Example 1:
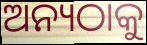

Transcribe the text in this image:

ଅନ୍ୟଠାକୁ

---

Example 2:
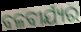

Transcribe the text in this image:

ବଳବୀର୍ଯ୍ୟର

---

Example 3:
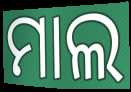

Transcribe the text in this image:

ମାଲ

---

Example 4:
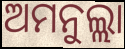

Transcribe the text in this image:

ଅମନୁଲ୍ଲା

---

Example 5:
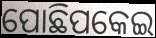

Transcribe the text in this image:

ପୋଛିପକେଇ